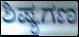
ಶಿಷ್ಯಗಣ